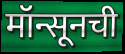
मॉन्सूनची